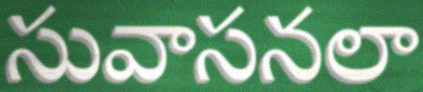
సువాసనలా